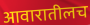
आवारातीलच